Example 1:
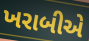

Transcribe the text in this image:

ખરાબીએ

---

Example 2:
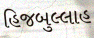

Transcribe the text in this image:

હિજબુલ્લાહ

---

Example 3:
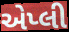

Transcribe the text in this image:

એપ્લી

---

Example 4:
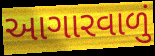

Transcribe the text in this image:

આગારવાળું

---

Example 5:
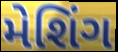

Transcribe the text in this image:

મેશિંગ